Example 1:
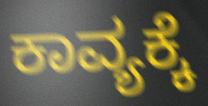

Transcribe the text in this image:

ಕಾವ್ಯಕ್ಕೆ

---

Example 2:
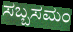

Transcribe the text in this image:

ಸಬ್ಬಸಮಂ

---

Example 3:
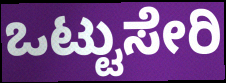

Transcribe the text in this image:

ಒಟ್ಟುಸೇರಿ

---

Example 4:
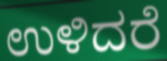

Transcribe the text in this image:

ಉಳಿದರೆ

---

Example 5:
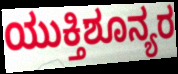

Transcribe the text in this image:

ಯುಕ್ತಿಶೂನ್ಯರ